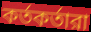
কর্তকর্তারা